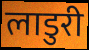
लाडुरी